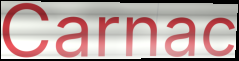
Carnac